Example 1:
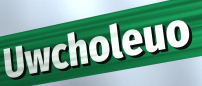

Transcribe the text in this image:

Uwcholeuo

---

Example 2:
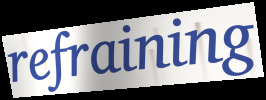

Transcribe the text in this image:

refraining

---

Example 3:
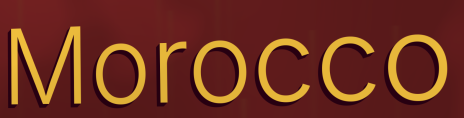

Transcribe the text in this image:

Morocco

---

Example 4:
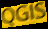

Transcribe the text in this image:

QGIS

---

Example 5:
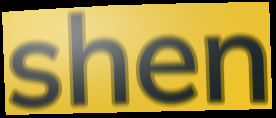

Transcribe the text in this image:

shen